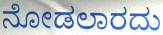
ನೋಡಲಾರದು